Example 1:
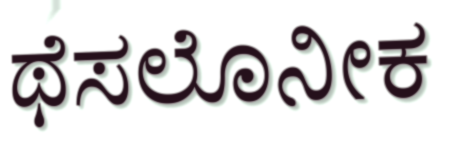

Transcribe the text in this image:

ಥೆಸಲೊನೀಕ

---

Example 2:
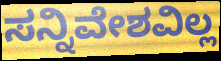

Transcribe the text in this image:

ಸನ್ನಿವೇಶವಿಲ್ಲ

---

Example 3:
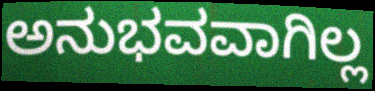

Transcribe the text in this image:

ಅನುಭವವಾಗಿಲ್ಲ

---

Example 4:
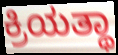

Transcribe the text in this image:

ಕ್ರಿಯತ್ಥಾ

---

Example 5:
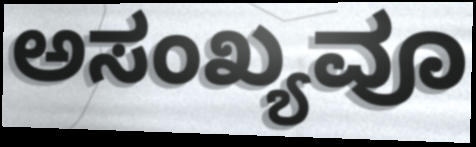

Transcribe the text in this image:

ಅಸಂಖ್ಯವೂ